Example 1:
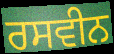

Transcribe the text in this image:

ਰਸਵੀਨ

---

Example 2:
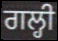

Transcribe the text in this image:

ਗਲ੍ਹੀ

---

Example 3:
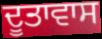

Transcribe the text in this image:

ਦੂਤਾਵਾਸ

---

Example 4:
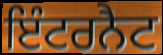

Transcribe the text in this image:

ਇੰਟਰਨੈਟ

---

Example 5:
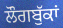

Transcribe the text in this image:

ਲੌਗਬੁੱਕਾਂ